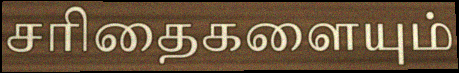
சரிதைகளையும்